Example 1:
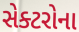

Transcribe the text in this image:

સેક્ટરોના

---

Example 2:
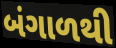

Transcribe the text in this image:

બંગાળથી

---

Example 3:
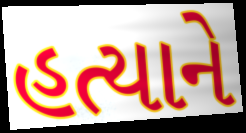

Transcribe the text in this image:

હત્યાને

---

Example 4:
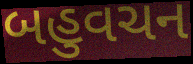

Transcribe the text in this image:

બહુવચન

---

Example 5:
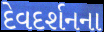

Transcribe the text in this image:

દેવદર્શનના